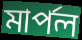
মার্পল